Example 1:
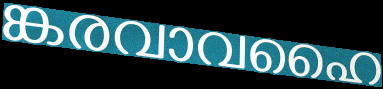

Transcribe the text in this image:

ങ്കരവാവഹൈ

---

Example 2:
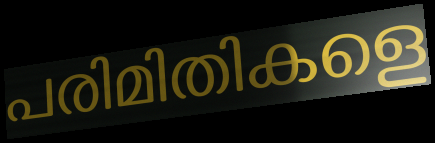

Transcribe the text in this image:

പരിമിതികളെ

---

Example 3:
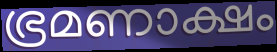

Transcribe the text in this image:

ഭ്രമണാക്ഷം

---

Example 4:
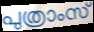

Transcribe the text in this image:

പുത്രാംസ്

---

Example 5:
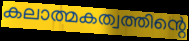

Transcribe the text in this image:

കലാത്മകത്വത്തിന്റെ